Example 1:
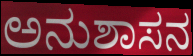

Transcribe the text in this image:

ಅನುಶಾಸನ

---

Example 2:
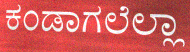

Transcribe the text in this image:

ಕಂಡಾಗಲೆಲ್ಲಾ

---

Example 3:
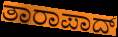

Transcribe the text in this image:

ತಾರಾಪಾದ್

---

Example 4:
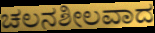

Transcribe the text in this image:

ಚಲನಶೀಲವಾದ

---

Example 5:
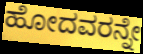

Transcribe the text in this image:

ಹೋದವರನ್ನೇ